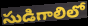
సుడిగాలిలో